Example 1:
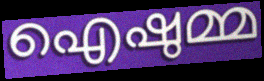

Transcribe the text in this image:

ഐഷുമ്മ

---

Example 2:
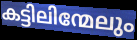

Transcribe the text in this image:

കട്ടിലിന്മേലും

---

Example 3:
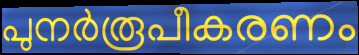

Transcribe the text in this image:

പുനർരൂപീകരണം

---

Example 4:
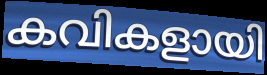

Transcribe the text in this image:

കവികളായി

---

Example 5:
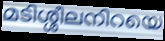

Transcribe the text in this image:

മടിശ്ശീലനിറയെ